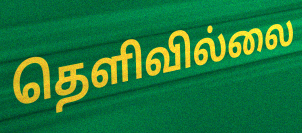
தெளிவில்லை